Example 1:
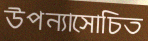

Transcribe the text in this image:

উপন্যাসোচিত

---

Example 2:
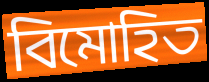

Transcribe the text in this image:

বিমোহিত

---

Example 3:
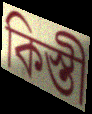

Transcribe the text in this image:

কিস্তী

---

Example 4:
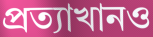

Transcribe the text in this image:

প্রত্যাখানও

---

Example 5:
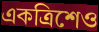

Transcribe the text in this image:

একত্রিশেও